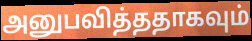
அனுபவித்ததாகவும்